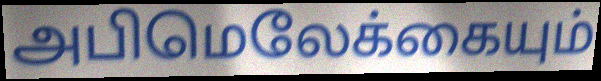
அபிமெலேக்கையும்